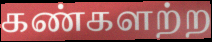
கண்களற்ற